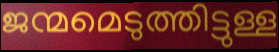
ജന്മമെടുത്തിട്ടുള്ള